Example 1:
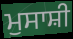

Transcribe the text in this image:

ਮੁਸਾਸ਼ੀ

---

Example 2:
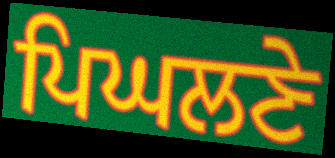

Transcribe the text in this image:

ਪਿਘਲਣੇ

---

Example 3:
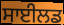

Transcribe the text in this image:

ਸਾਈਲਡ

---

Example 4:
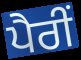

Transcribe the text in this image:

ਪੈਰੀਂ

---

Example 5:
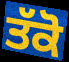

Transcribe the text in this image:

ਤੱਕੋ